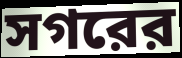
সগরের